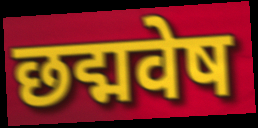
छद्मवेष